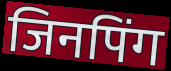
जिनपिंग